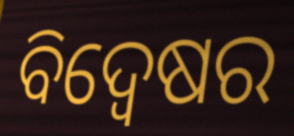
ବିଦ୍ୱେଷର